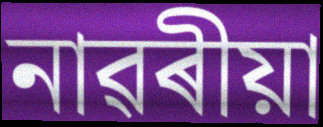
নাৱৰীয়া